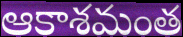
ఆకాశమంత